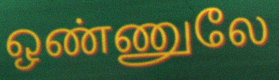
ஒண்ணுலே